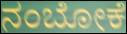
ನಂಬೋಕೆ